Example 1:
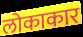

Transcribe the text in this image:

लोकाकार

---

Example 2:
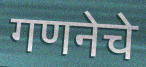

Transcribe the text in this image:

गणनेचे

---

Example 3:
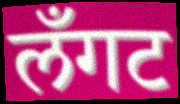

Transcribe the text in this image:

लँगट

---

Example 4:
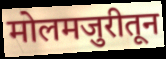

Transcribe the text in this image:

मोलमजुरीतून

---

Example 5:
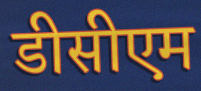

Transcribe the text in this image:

डीसीएम